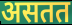
असतत